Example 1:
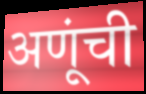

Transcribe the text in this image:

अणूंची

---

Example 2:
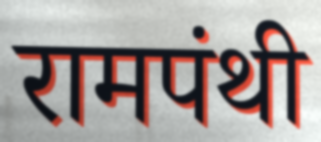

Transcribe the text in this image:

रामपंथी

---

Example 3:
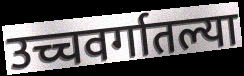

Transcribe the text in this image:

उच्चवर्गातल्या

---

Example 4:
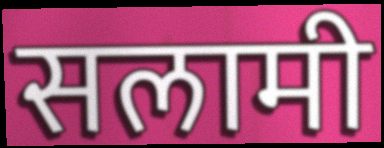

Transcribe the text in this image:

सलामी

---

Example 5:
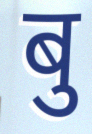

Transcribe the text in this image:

बु